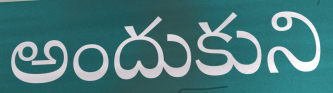
అందుకుని